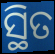
ସ୍ଥିତ